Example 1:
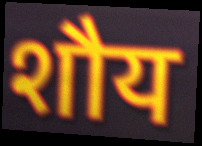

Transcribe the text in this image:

शौय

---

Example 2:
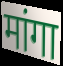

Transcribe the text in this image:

मांगा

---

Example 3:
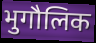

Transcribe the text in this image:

भुगौलिक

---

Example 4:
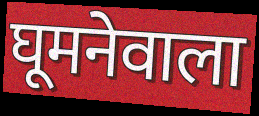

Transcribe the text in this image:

घूमनेवाला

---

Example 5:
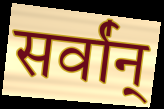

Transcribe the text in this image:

सर्वा॑न्